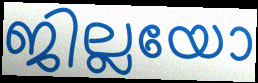
ജില്ലയോ